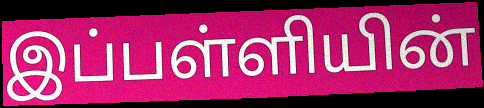
இப்பள்ளியின்